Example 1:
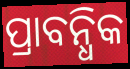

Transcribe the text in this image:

ପ୍ରାବନ୍ଧିକ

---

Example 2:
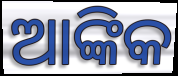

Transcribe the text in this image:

ଆଙ୍କିକ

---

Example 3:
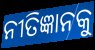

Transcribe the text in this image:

ନୀତିଜ୍ଞାନକୁ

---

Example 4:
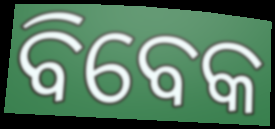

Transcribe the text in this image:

ବିବେକ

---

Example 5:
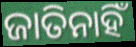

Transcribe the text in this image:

ଜାତିନାହିଁ